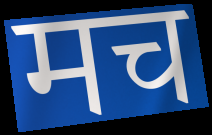
मच